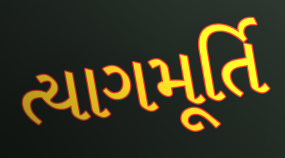
ત્યાગમૂર્તિ